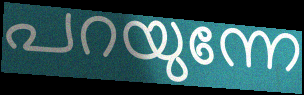
പറയുന്നേ